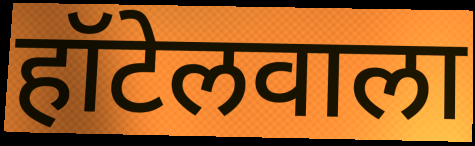
हॉटेलवाला